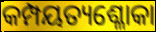
କମ୍ପୟତ୍ୟଶ୍ଳୋକା